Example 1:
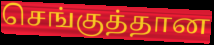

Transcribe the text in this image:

செங்குத்தான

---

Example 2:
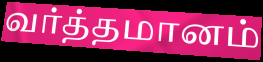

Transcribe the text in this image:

வர்த்தமானம்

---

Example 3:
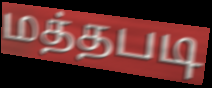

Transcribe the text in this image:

மத்தபடி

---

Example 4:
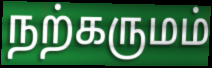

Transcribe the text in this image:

நற்கருமம்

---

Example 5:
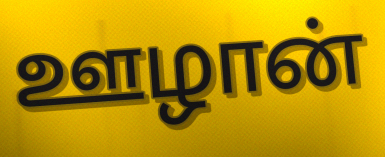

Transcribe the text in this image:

ஊழான்